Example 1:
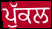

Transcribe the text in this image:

ਪੁੱਕਲ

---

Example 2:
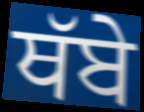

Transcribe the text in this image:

ਥੱਬੇ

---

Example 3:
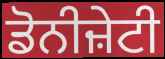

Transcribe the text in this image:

ਡੋਨੀਜ਼ੇਟੀ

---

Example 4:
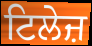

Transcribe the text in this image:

ਟਿਲੇਜ਼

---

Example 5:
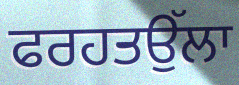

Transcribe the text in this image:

ਫਰਹਤਉੱਲਾ